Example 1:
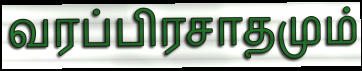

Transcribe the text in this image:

வரப்பிரசாதமும்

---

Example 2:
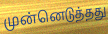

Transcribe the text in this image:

முன்னெடுத்தது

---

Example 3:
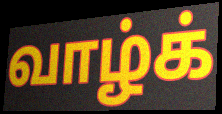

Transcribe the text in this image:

வாழ்க்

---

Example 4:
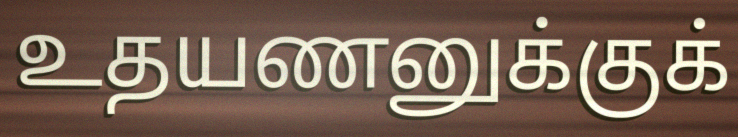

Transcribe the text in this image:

உதயணனுக்குக்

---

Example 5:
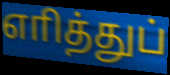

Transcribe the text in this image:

எரித்துப்